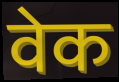
वेक